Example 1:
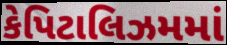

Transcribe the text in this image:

કેપિટાલિઝમમાં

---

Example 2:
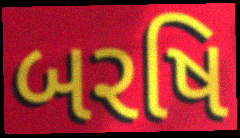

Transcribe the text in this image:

બરષિ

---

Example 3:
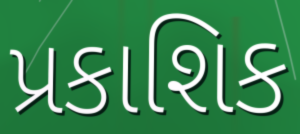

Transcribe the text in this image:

પ્રકાશિક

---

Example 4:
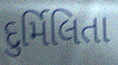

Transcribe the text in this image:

દુર્મિલિતા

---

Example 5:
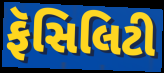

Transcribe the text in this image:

ફૅસિલિટી